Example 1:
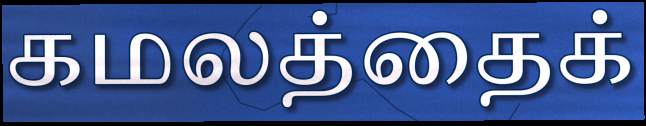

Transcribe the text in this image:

கமலத்தைக்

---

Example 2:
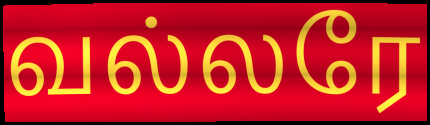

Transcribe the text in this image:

வல்லரே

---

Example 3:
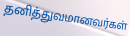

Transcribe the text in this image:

தனித்துவமானவர்கள்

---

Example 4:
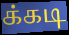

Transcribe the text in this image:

க்கடி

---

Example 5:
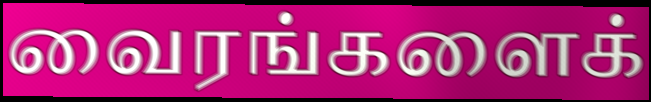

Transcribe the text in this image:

வைரங்களைக்